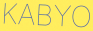
KABYO